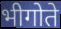
भीगोते